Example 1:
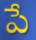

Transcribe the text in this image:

పే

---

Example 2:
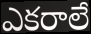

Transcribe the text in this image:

ఎకరాలే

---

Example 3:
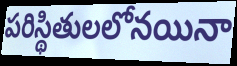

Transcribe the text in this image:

పరిస్థితులలోనయినా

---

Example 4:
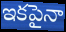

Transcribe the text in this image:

ఇకపైనా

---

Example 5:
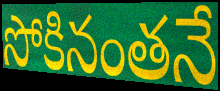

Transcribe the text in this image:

సోకినంతనే